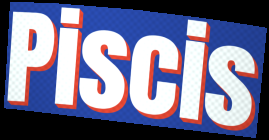
Piscis